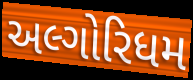
અલ્ગોરિધમ